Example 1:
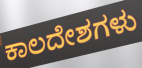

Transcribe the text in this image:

ಕಾಲದೇಶಗಳು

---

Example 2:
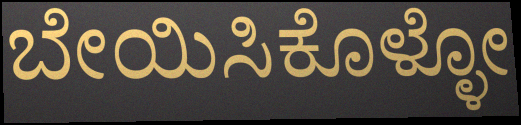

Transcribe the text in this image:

ಬೇಯಿಸಿಕೊಳ್ಳೋ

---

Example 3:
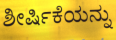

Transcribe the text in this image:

ಶೀರ್ಷಿಕೆಯನ್ನು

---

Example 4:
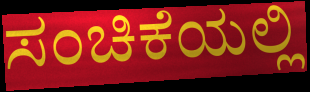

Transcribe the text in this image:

ಸಂಚಿಕೆಯಲ್ಲಿ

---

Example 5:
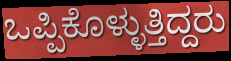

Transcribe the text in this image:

ಒಪ್ಪಿಕೊಳ್ಳುತ್ತಿದ್ದರು